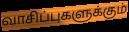
வாசிப்புகளுக்கும்